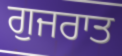
ਗੁਜਰਾਤ